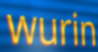
wurin